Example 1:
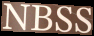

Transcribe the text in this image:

NBSS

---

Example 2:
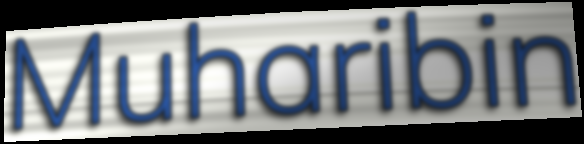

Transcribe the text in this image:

Muharibin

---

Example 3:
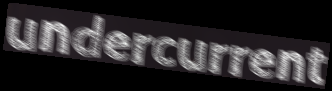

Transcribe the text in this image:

undercurrent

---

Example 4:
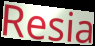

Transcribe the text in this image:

Resia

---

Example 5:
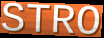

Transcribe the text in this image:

STRO